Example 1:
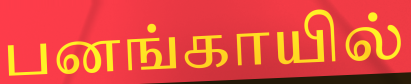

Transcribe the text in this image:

பனங்காயில்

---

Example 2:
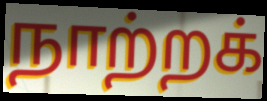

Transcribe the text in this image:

நாற்றக்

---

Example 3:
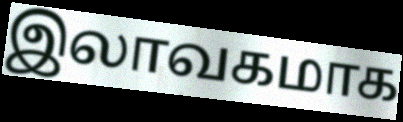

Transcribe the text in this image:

இலாவகமாக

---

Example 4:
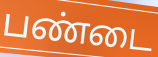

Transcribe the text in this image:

பண்டை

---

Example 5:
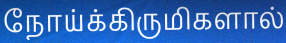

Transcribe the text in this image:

நோய்க்கிருமிகளால்